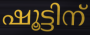
ഷൂട്ടിന്